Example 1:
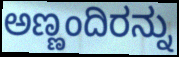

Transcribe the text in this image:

ಅಣ್ಣಂದಿರನ್ನು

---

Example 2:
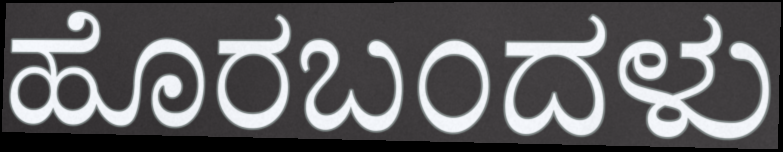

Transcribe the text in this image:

ಹೊರಬಂದಳು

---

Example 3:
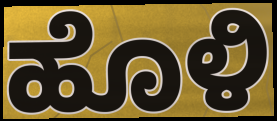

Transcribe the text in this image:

ಹೊಳಿ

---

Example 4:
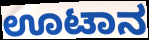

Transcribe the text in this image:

ಊಟಾನ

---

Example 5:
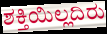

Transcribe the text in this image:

ಶಕ್ತಿಯಿಲ್ಲದಿರು